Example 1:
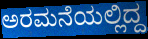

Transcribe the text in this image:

ಅರಮನೆಯಲ್ಲಿದ್ದ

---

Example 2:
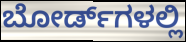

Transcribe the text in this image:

ಬೋರ್ಡ್‌ಗಳಲ್ಲಿ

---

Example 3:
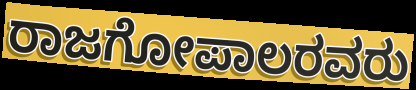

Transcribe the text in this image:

ರಾಜಗೋಪಾಲರವರು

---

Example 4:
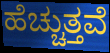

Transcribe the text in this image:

ಹೆಚ್ಚುತ್ತವೆ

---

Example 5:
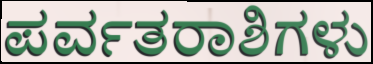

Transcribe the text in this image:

ಪರ್ವತರಾಶಿಗಳು